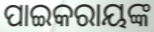
ପାଇକରାୟଙ୍କ